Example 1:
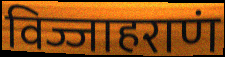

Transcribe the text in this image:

विज्जाहराणं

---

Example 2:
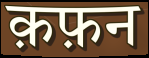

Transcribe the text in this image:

क़फ़न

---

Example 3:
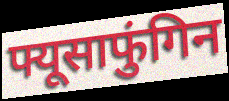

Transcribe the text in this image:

फ्यूसाफुंगिन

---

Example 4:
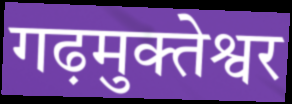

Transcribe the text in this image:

गढ़मुक्तेश्वर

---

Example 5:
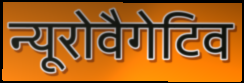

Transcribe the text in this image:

न्यूरोवैगेटिव